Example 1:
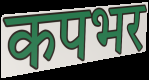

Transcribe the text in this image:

कपभर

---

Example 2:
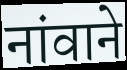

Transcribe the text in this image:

नांवाने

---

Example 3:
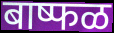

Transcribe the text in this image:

बाष्फळ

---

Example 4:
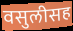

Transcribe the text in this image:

वसुलीसह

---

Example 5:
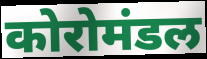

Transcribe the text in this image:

कोरोमंडल